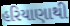
હરિયાણાથી